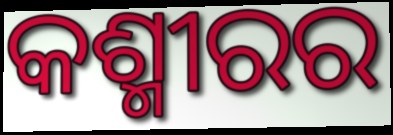
କଶ୍ମୀରର